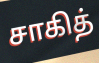
சாகித்